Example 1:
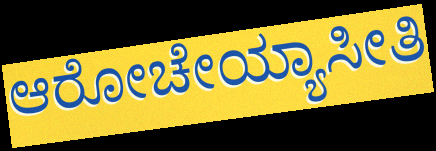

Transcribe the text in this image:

ಆರೋಚೇಯ್ಯಾಸೀತಿ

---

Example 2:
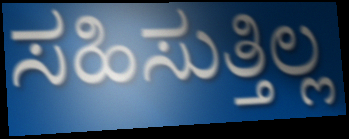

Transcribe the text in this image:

ಸಹಿಸುತ್ತಿಲ್ಲ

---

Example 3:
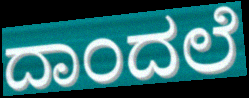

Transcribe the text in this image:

ದಾಂದಲೆ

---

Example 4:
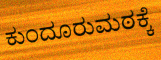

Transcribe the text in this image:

ಕುಂದೂರುಮಠಕ್ಕೆ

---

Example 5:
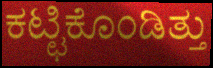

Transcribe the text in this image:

ಕಟ್ಟಿಕೊಂಡಿತ್ತು